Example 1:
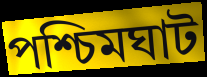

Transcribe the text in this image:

পশ্চিমঘাট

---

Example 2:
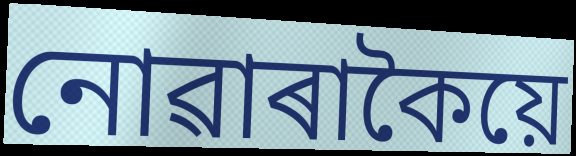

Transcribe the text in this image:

নোৱাৰাকৈয়ে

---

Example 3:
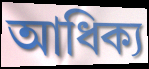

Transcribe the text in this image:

আধিক্য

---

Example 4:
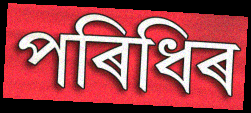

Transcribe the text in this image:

পৰিধিৰ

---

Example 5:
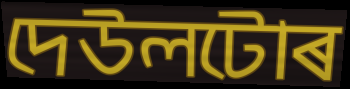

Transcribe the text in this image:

দেউলটোৰ